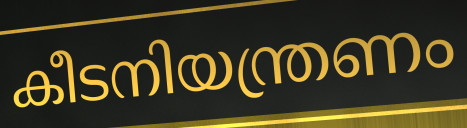
കീടനിയന്ത്രണം